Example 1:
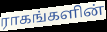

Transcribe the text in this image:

ராகங்களின்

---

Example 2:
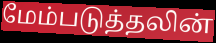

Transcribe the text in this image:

மேம்படுத்தலின்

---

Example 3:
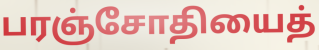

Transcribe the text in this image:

பரஞ்சோதியைத்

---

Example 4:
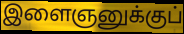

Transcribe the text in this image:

இளைஞனுக்குப்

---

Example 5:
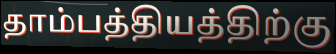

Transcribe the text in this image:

தாம்பத்தியத்திற்கு